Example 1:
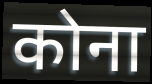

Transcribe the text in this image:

कोना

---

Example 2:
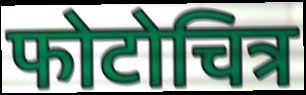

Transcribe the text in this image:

फोटोचित्र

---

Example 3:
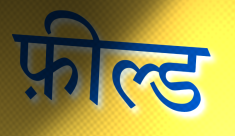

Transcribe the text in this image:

फ़ील्ड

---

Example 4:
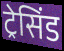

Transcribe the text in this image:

ट्रेसिंड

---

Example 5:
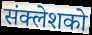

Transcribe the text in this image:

संक्लेशको